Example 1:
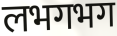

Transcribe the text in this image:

लभगभग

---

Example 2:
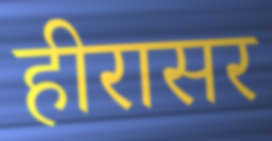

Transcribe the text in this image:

हीरासर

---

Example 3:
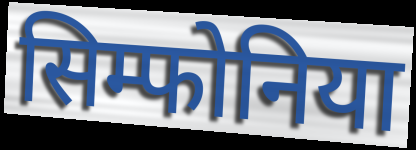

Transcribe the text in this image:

सिम्फोनिया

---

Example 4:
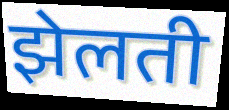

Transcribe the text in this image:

झेलती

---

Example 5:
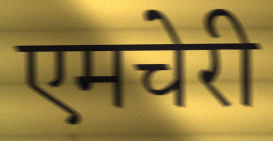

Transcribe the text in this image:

एमचेरी